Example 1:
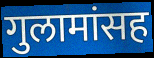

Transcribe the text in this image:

गुलामांसह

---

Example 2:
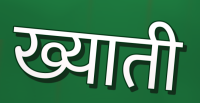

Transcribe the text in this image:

ख्याती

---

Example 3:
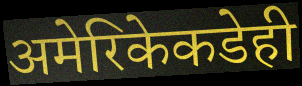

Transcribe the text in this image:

अमेरिकेकडेही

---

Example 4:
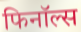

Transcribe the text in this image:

फिनॉल्स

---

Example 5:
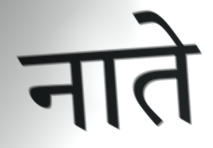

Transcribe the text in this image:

नाते